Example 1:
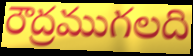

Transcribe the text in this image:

రౌద్రముగలది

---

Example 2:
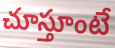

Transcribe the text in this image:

చూస్తూంటే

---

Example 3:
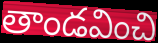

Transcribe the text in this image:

తాండవించి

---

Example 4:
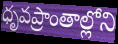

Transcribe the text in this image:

ధృవప్రాంతాల్లోని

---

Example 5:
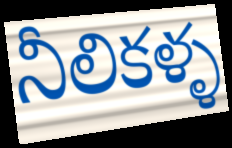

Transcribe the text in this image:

నీలికళ్ళ